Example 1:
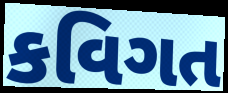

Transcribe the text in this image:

કવિગત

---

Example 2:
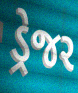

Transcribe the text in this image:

ડ્રેજર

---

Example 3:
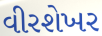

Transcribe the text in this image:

વીરશેખર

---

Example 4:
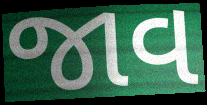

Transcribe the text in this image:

જાવ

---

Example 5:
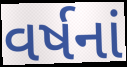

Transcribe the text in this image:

વર્ષનાં